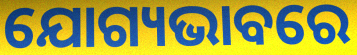
ଯୋଗ୍ୟଭାବରେ